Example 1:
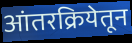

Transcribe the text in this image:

आंतरक्रियेतून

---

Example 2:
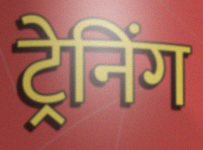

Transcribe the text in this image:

ट्रेनिंग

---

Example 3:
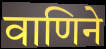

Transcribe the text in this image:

वाणिने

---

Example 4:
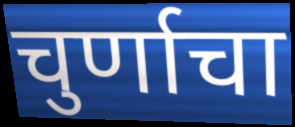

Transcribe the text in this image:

चुर्णाचा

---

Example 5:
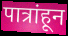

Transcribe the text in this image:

पात्रांहून